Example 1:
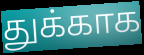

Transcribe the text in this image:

துக்காக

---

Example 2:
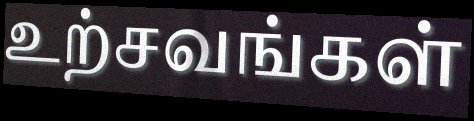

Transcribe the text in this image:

உற்சவங்கள்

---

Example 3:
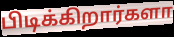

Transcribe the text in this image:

பிடிக்கிறார்களா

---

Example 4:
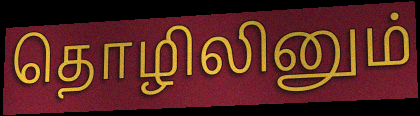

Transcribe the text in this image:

தொழிலினும்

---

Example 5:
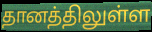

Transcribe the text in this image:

தானத்திலுள்ள